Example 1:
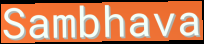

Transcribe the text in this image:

Sambhava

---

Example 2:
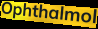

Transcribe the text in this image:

Ophthalmol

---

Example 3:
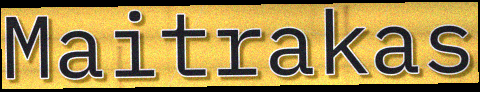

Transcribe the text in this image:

Maitrakas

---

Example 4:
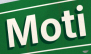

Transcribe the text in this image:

Moti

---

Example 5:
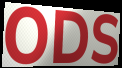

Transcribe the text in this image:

ODS